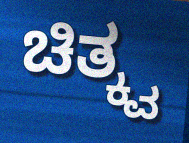
ಚಿತ್ಕ್ವ